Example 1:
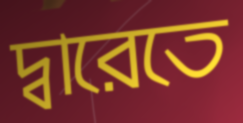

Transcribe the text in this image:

দ্বারেতে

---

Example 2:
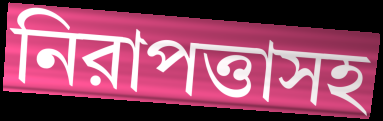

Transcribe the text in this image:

নিরাপত্তাসহ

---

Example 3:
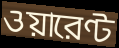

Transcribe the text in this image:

ওয়ারেণ্ট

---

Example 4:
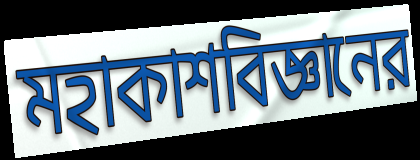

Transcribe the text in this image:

মহাকাশবিজ্ঞানের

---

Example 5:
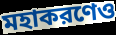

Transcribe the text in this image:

মহাকরণেও